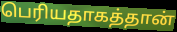
பெரியதாகத்தான்